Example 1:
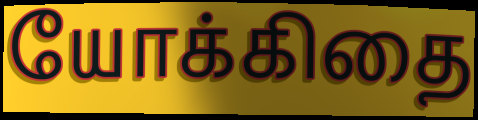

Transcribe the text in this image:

யோக்கிதை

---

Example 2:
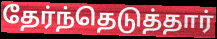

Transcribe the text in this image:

தேர்ந்தெடுத்தார்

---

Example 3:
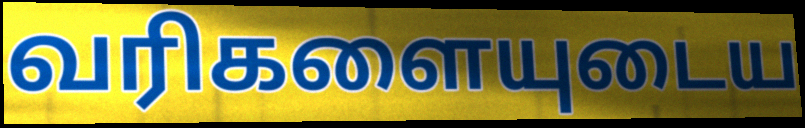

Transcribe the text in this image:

வரிகளையுடைய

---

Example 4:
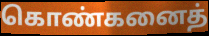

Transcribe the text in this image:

கொண்கனைத்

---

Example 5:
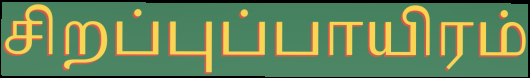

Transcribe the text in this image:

சிறப்புப்பாயிரம்